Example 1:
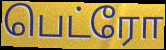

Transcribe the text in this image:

பெட்ரோ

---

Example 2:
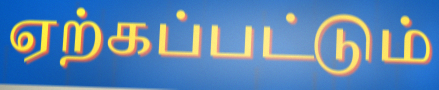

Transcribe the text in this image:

ஏற்கப்பட்டும்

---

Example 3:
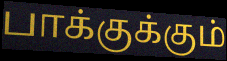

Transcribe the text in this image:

பாக்குக்கும்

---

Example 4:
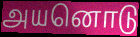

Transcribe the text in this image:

அயனொடு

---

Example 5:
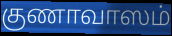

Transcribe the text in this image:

குணாவாஸம்